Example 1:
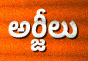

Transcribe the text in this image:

అర్జీలు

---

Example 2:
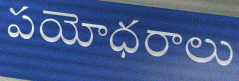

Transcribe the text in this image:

పయోధరాలు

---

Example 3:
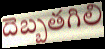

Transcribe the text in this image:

దెబ్బతగిలి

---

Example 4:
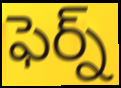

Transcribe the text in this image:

ఫెర్న్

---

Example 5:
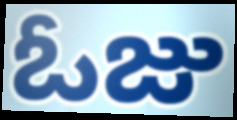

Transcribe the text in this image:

ఓజు